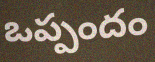
ఒప్పందం